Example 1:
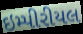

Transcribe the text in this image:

ઇમ્પીરીયલ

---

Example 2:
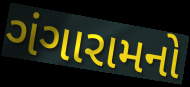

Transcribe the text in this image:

ગંગારામનો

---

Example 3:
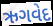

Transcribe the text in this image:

ઋગવેદ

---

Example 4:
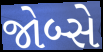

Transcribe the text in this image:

જોબ્સે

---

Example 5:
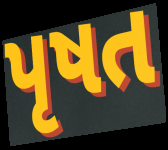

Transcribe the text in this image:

પૃષત